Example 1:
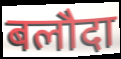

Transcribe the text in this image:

बलौदा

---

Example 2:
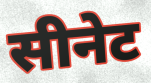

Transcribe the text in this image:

सीनेट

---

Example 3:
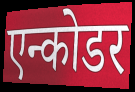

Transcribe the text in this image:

एन्कोडर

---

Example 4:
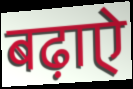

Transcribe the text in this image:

बढ़ाऐ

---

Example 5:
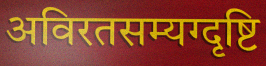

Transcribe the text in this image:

अविरतसम्यग्दृष्टि